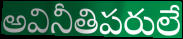
అవినీతిపరులే